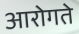
आरोगते